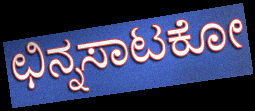
ಛಿನ್ನಸಾಟಕೋ